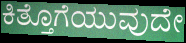
ಕಿತ್ತೊಗೆಯುವುದೇ